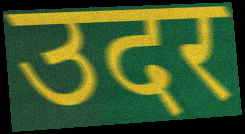
उदर